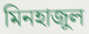
মিনহাজুল